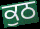
ਕੁਠ